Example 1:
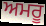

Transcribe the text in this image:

ਅਮਰੂ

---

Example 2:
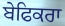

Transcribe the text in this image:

ਬੇਫਿਕਰਾ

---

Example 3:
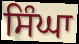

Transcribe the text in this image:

ਸਿੰਘਾ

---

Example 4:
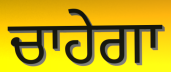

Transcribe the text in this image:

ਚਾਹੇਗਾ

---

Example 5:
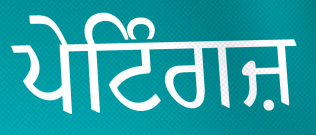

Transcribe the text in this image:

ਪੇਟਿੰਗਜ਼